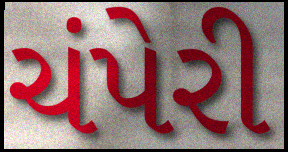
ચંપેરી